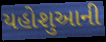
યહોશુઆની